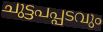
ചുട്ടപപ്പടവും